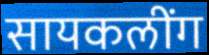
सायकलींग